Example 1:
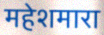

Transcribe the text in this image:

महेशमारा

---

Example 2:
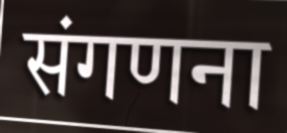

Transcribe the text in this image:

संगणना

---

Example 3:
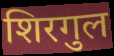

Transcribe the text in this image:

शिरगुल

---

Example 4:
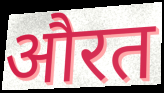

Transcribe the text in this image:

औरत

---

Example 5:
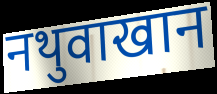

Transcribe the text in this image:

नथुवाखान